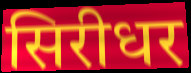
सिरीधर